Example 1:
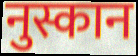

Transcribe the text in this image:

नुस्कान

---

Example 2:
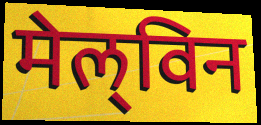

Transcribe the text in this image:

मेल्विन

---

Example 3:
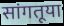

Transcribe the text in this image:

सांगतूया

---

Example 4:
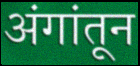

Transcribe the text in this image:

अंगांतून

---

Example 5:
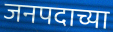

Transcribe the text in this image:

जनपदाच्या